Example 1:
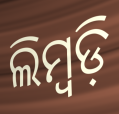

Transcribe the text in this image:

ଲିମ୍ବଡ଼ି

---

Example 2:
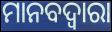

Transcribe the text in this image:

ମାନବଦ୍ୱାରା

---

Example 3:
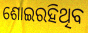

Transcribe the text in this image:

ଶୋଇରହିଥିବ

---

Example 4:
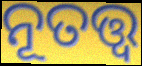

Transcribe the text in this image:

ନୂତତ୍ତ୍ବ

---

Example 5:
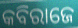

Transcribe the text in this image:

କବିରାଜେ